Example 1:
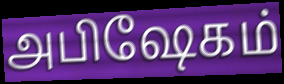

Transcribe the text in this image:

அபிஷேகம்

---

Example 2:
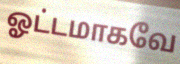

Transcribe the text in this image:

ஓட்டமாகவே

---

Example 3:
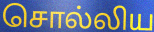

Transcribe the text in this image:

சொல்லிய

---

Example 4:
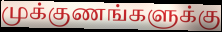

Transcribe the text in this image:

முக்குணங்களுக்கு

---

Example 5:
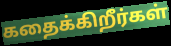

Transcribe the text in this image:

கதைக்கிறீர்கள்